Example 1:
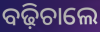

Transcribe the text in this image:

ବଢ଼ିଚାଲେ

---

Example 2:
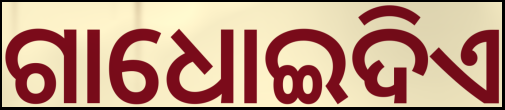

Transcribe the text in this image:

ଗାଧୋଇଦିଏ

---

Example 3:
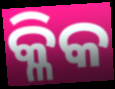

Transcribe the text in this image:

କ୍ଳିକ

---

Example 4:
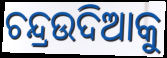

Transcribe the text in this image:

ଚନ୍ଦ୍ରଉଦିଆକୁ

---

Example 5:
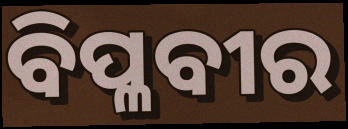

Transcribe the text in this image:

ବିପ୍ଳବୀର